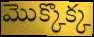
మొక్కొక్క